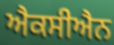
ਐਕਸੀਐਨ